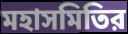
মহাসমিতির